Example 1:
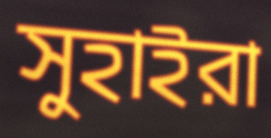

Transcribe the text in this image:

সুহাইরা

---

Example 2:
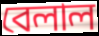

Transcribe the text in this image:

বেলাল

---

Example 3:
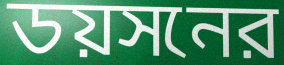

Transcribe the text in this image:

ডয়সনের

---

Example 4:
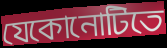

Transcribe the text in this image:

যেকোনোটিতে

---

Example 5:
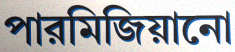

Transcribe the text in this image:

পারমিজিয়ানো